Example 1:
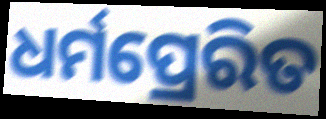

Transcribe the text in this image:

ଧର୍ମପ୍ରେରିତ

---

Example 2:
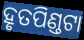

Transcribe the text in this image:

ହୃତପିଣ୍ଡଟା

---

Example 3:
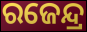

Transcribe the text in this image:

ରଜେନ୍ଦ୍ର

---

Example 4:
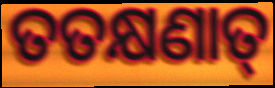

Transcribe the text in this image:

ତତକ୍ଷଣାତ୍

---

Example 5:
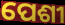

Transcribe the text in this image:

ପେଶୀ